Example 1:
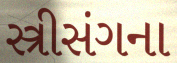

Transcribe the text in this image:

સ્ત્રીસંગના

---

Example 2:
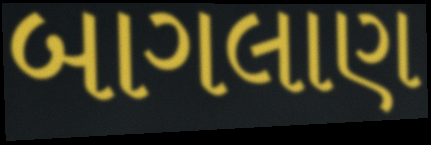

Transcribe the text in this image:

બાગલાણ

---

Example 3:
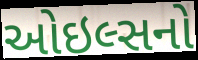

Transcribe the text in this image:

ઓઇલ્સનો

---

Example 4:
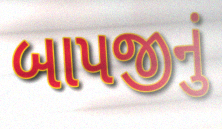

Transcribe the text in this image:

બાપજીનું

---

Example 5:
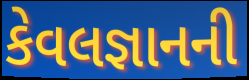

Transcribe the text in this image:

કેવલજ્ઞાનની